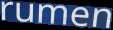
rumen